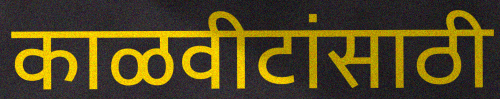
काळवीटांसाठी